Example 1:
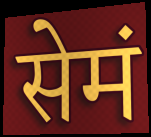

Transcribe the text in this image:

सेमं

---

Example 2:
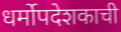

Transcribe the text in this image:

धर्मोपदेशकाची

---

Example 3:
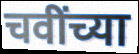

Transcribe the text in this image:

चवींच्या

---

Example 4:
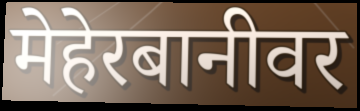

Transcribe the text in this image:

मेहेरबानीवर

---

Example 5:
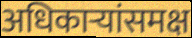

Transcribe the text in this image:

अधिकाऱ्यांसमक्ष